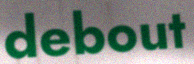
debout